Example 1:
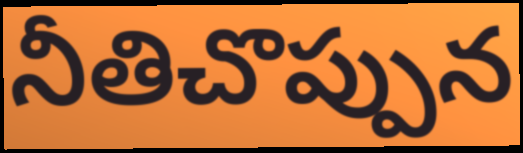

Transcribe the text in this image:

నీతిచొప్పున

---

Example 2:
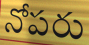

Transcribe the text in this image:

నోపరు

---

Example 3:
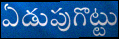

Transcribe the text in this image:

ఏడుపుగొట్టు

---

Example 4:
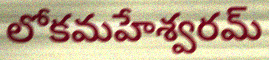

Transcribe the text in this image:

లోకమహేశ్వరమ్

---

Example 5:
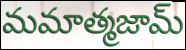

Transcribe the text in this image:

మమాత్మజామ్